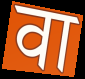
वा